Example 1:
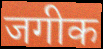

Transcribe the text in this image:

जगीक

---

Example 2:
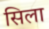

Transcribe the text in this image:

सिला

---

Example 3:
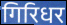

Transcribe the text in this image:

गिरिधर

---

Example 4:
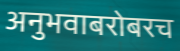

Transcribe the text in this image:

अनुभवाबरोबरच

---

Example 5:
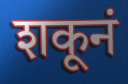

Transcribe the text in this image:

शकूनं